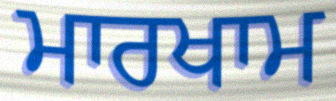
ਮਾਰਖਾਮ